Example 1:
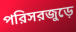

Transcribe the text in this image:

পরিসরজুড়ে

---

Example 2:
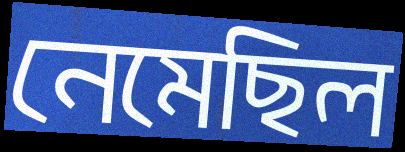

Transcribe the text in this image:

নেমেছিল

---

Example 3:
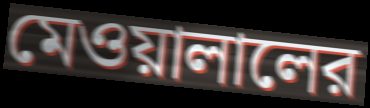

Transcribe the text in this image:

মেওয়ালালের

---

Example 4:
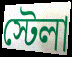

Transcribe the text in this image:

স্টেলা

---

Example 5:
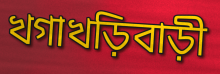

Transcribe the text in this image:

খগাখড়িবাড়ী